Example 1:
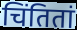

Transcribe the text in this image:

चिंतितां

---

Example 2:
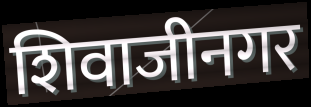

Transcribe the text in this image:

शिवाजीनगर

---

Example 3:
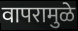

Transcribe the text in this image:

वापरामुळे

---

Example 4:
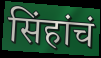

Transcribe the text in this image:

सिंहांचं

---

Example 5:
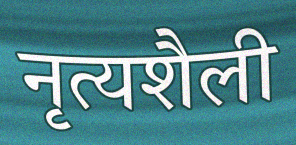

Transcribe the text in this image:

नृत्यशैली